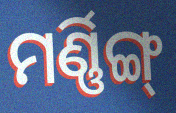
ମର୍ଣ୍ଣିଙ୍ଗ୍